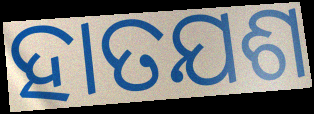
ହାତଯଶ